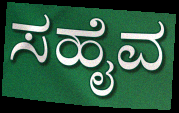
ಸಹೈವ